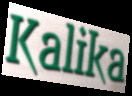
Kalika